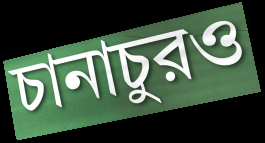
চানাচুরও